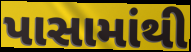
પાસામાંથી